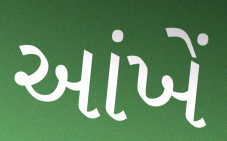
આંખેં